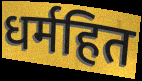
धर्महित